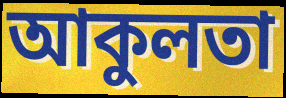
আকুলতা